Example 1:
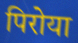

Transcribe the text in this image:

पिरोया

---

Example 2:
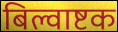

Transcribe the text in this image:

बिल्वाष्टक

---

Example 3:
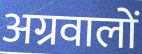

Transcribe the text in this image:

अग्रवालों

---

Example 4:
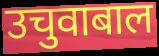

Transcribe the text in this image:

उचुवाबाल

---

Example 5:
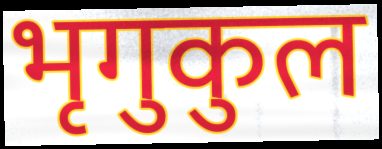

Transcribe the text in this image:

भृगुकुल